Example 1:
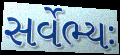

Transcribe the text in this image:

સર્વેભ્યઃ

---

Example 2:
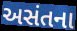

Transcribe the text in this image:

અસંતના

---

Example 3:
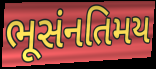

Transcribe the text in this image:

ભૂસંનતિમય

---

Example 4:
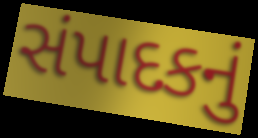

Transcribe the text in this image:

સંપાદકનું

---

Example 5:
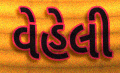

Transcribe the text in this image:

વેહેલી